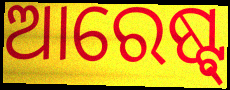
ଆରେଷ୍ଟ୍